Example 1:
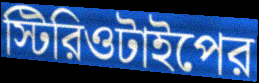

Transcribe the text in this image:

স্টিরিওটাইপের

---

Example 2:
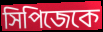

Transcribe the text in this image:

সিপিজেকে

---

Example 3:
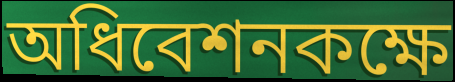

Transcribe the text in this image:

অধিবেশনকক্ষে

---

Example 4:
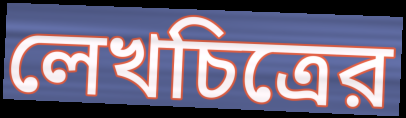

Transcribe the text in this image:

লেখচিত্রের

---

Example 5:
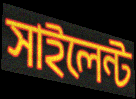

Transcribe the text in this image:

সাইলেন্ট